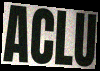
ACLU